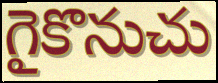
గైకొనుచు